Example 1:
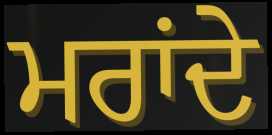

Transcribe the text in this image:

ਮਰਾਂਦੇ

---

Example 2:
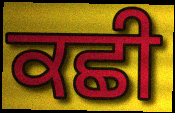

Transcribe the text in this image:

ਕਛੀ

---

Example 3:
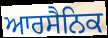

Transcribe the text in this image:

ਆਰਸੈਨਿਕ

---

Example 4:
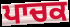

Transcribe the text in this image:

ਪਾਚਕ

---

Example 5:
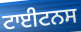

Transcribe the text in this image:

ਟਾਈਟਨਸ